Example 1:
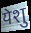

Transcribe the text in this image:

येशु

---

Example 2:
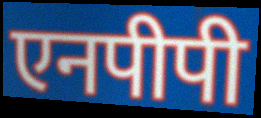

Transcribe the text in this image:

एनपीपी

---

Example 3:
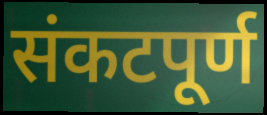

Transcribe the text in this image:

संकटपूर्ण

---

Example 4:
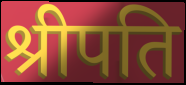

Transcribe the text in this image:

श्रीपति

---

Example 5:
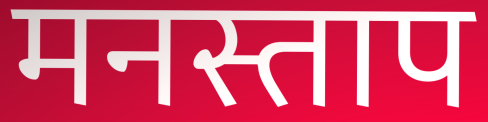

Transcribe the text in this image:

मनस्ताप